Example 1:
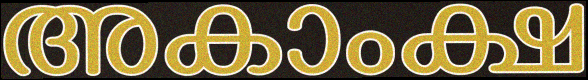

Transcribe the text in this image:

അകാംക്ഷ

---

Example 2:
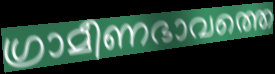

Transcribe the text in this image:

ഗ്രാമീണഭാവത്തെ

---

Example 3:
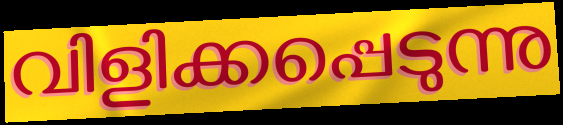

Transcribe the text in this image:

വിളിക്കപ്പെടുന്നു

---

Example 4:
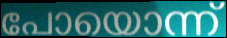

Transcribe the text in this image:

പോയൊന്ന്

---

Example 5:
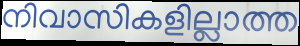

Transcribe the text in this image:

നിവാസികളില്ലാത്ത